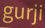
gurji